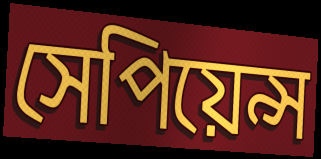
সেপিয়েন্স